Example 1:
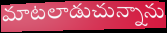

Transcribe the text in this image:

మాటలాడుచున్నాను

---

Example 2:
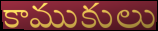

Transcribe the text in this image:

కాముకులు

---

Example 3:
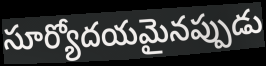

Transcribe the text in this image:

సూర్యోదయమైనప్పుడు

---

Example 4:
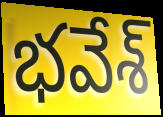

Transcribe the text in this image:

భవేశ్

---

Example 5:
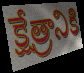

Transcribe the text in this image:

క్షేత్రానికి